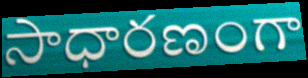
సాధారణంగా